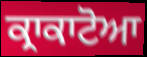
ਕ੍ਰਾਕਾਟੋਆ